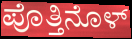
ಪೊತ್ತಿನೊಳ್